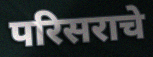
परिसराचे